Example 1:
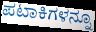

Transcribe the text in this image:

ಪಟಾಕಿಗಳನ್ನೂ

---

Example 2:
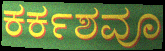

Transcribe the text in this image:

ಕರ್ಕಶವೂ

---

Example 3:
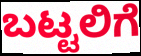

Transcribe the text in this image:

ಬಟ್ಟಲಿಗೆ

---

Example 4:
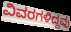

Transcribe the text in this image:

ವಿವರಗಳಿದ್ದವು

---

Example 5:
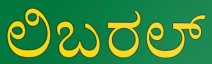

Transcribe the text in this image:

ಲಿಬರಲ್